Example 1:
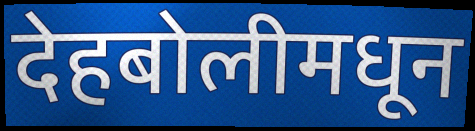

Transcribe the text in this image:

देहबोलीमधून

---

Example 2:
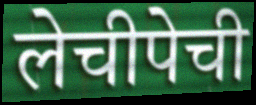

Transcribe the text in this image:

लेचीपेची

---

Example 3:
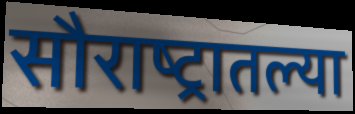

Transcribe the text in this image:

सौराष्ट्रातल्या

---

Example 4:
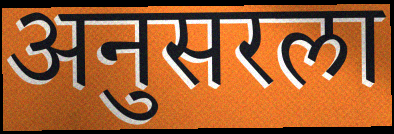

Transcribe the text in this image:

अनुसरला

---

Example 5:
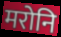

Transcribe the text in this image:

मरोनि